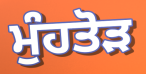
ਮੁੰਹਤੋੜ